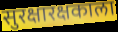
सुरक्षारक्षकाला